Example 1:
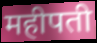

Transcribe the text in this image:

महीपती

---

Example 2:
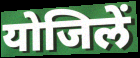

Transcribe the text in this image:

योजिलें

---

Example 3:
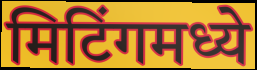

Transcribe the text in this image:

मिटिंगमध्ये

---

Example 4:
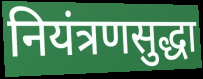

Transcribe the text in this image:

नियंत्रणसुद्धा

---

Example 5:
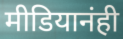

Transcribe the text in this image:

मीडियानंही